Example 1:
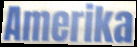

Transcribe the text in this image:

Amerika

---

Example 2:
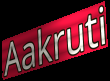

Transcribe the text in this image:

Aakruti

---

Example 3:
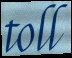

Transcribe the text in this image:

toll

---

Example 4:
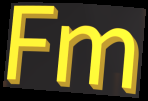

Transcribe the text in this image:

Fm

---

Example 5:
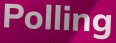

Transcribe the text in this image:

Polling